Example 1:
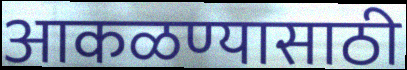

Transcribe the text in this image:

आकळण्यासाठी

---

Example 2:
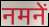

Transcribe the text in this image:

नमनें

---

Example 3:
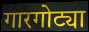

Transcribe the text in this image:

गारगोट्या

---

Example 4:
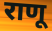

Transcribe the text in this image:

राणू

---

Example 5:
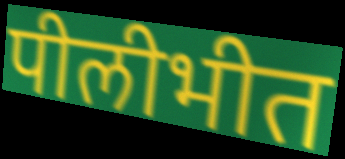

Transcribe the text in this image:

पीलीभीत